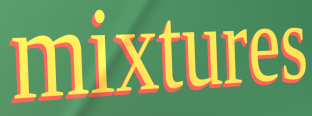
mixtures